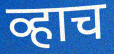
व्हाच